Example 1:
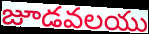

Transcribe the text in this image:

జూడవలయు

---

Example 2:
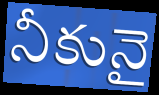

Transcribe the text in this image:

నీకునై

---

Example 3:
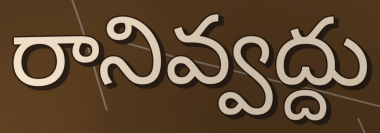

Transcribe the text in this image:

రానివ్వద్దు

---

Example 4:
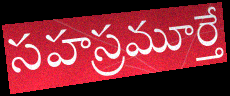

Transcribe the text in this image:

సహస్రమూర్తే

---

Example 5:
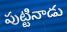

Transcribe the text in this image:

పుట్టినాడు